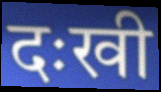
दःखी